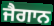
ਜੈਗਾਨ